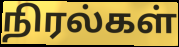
நிரல்கள்